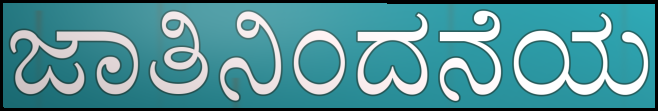
ಜಾತಿನಿಂದನೆಯ